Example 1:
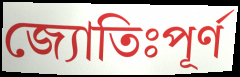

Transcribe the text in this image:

জ্যোতিঃপূর্ণ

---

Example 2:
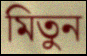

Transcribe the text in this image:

মিতুন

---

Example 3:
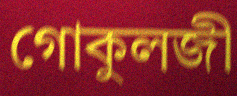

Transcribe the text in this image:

গোকুলজী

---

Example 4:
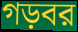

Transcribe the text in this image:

গড়বর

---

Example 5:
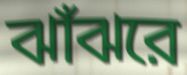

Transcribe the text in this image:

ঝাঁঝরে